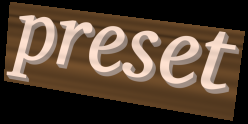
preset